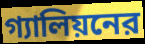
গ্যালিয়নের